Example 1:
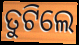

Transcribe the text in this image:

ତୁଟିଲେ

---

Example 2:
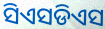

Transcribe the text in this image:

ସିଏସଡିଏସ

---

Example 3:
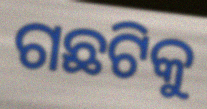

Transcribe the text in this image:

ଗଛଟିକୁ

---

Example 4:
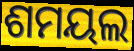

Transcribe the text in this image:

ଶମୟଲ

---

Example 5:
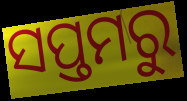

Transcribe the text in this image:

ସପ୍ତମରୁ